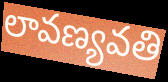
లావణ్యవతి